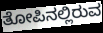
ತೋಪಿನಲ್ಲಿರುವ